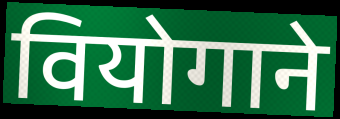
वियोगाने